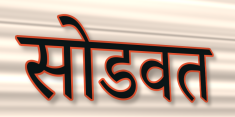
सोडवत